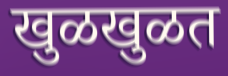
खुळखुळत